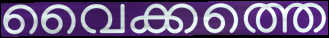
വൈക്കത്തെ